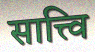
सात्त्वि